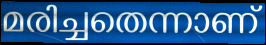
മരിച്ചതെന്നാണ്